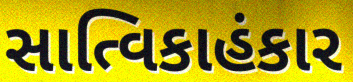
સાત્વિકાહંકાર